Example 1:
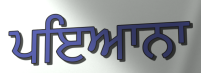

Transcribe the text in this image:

ਪਇਆਨਾ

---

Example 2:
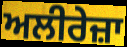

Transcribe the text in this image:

ਅਲੀਰੇਜ਼ਾ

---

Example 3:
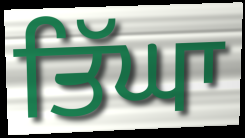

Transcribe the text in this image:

ਤਿੱਘਾ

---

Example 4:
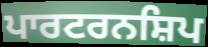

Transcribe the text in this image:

ਪਾਰਟਰਨਸ਼ਿਪ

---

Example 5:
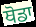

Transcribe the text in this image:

ਥੋਡਾ